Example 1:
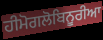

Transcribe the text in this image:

ਹੀਮੋਗਲੋਬਿਨੂਰੀਆ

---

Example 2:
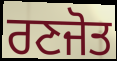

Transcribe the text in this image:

ਰਣਜੋਤ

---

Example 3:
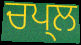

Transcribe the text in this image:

ਚਪ੍ਲ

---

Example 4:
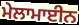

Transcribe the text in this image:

ਮੇਲਾਮਾਈਨ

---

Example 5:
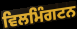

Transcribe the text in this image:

ਵਿਲਮਿੰਗਟਨ